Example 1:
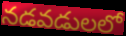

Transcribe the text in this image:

నడవడులలో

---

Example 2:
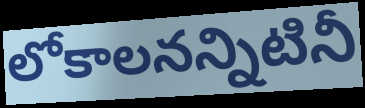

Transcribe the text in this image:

లోకాలనన్నిటినీ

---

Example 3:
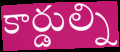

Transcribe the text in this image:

కార్డుల్ని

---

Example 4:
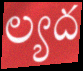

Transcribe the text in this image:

ల్యద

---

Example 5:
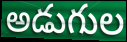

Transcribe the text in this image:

అడుగుల